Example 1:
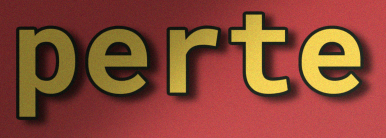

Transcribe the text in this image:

perte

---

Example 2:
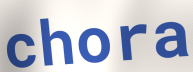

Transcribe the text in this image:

chora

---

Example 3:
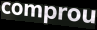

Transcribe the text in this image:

comprou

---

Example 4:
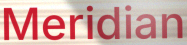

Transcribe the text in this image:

Meridian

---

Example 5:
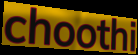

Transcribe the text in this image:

choothi